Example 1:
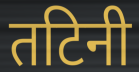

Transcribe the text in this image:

तटिनी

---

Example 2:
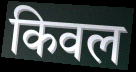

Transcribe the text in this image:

किवल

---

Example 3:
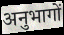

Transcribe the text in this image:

अनुभागों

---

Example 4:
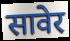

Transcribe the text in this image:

सावेर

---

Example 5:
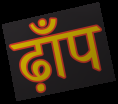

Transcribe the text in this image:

ढ़ाँप